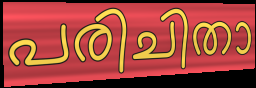
പരിചിതാ